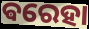
ଵରେହା